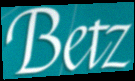
Betz